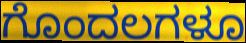
ಗೊಂದಲಗಳೂ